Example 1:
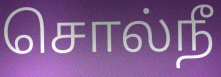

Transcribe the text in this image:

சொல்நீ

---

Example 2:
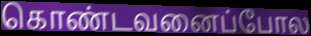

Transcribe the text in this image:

கொண்டவனைப்போல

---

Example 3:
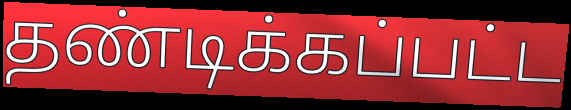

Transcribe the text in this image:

தண்டிக்கப்பட்ட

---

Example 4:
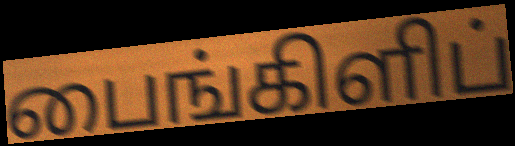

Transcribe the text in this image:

பைங்கிளிப்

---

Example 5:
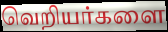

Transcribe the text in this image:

வெறியர்களை